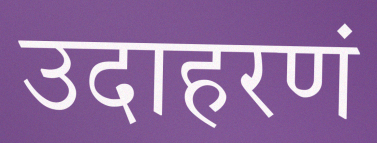
उदाहरणं